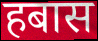
हबास